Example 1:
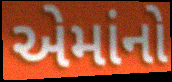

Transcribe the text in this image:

એમાંનો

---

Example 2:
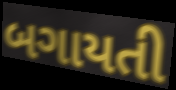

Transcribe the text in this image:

બગાયતી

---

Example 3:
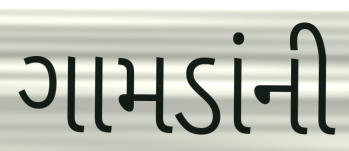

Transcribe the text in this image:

ગામડાંની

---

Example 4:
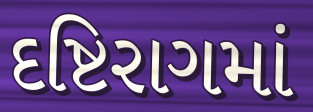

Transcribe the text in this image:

દષ્ટિરાગમાં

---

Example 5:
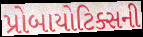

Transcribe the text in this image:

પ્રોબાયોટિક્સની